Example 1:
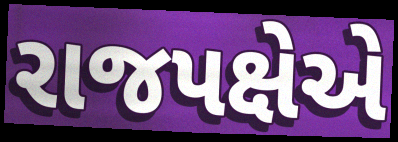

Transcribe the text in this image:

રાજપક્ષેએ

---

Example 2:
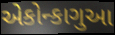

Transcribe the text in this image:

એકોન્કાગુઆ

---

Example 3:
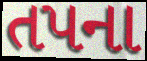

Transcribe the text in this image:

તપના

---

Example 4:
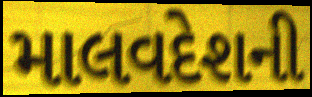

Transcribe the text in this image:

માલવદેશની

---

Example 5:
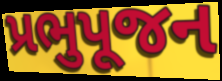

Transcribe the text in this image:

પ્રભુપૂજન